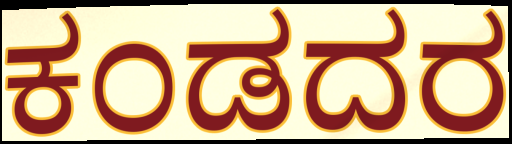
ಕಂಡದರ